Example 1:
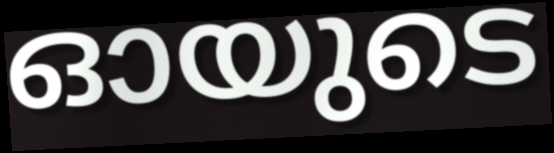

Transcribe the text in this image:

ഓയുടെ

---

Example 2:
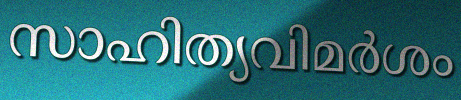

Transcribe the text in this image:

സാഹിത്യവിമർശം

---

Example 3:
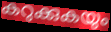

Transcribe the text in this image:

കറുക്കുകയും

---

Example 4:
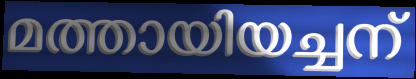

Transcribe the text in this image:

മത്തായിയച്ചന്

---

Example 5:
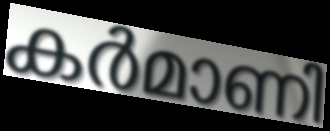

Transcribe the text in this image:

കർമാണി